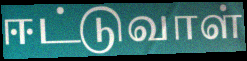
ஈட்டுவாள்